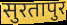
सुरतापुर